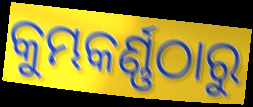
କୁମ୍ଭକର୍ଣ୍ଣଠାରୁ